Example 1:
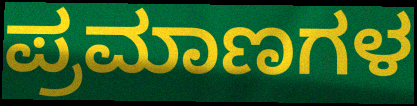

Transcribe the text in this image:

ಪ್ರಮಾಣಗಳ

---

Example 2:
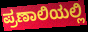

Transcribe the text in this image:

ಪ್ರಣಾಲಿಯಲ್ಲಿ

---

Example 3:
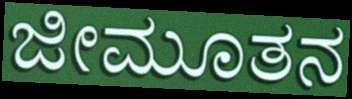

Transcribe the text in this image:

ಜೀಮೂತನ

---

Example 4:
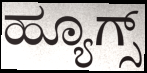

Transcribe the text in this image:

ಹ್ಯೂಗ್ಸ್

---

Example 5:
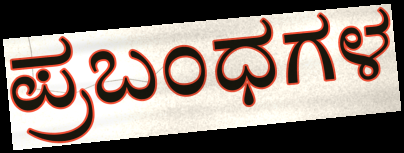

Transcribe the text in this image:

ಪ್ರಬಂಧಗಳ